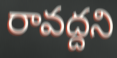
రావద్దని